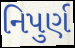
નિપુર્ણ